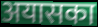
अयासका